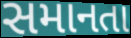
સમાનતા